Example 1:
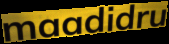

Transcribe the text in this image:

maadidru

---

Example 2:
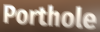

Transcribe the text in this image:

Porthole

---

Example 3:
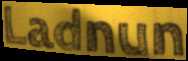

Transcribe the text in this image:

Ladnun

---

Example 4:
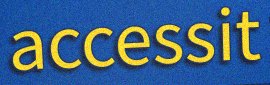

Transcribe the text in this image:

accessit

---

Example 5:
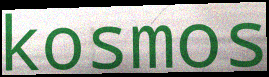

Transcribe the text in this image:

kosmos